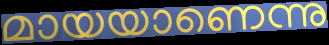
മായയാണെന്നു